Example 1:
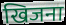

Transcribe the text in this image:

खिजना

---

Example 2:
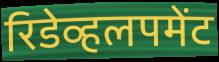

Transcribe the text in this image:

रिडेव्हलपमेंट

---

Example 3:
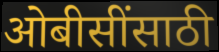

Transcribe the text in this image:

ओबीसींसाठी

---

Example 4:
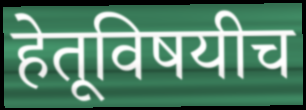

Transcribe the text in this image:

हेतूविषयीच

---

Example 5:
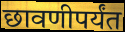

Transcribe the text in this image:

छावणीपर्यंत